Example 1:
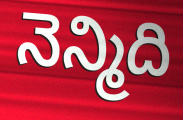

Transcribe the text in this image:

నెన్మిది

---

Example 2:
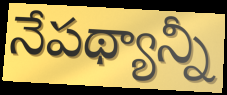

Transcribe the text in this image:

నేపథ్యాన్నీ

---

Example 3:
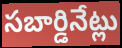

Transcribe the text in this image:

సబార్డినేట్లు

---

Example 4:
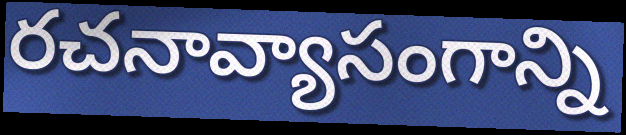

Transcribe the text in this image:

రచనావ్యాసంగాన్ని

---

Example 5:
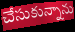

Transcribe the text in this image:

చేసుకున్నాను